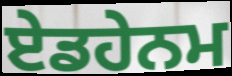
ਏਡਹੇਨਮ